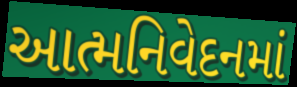
આત્મનિવેદનમાં